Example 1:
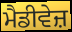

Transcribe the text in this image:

ਮੈਡੀਵੇਜ਼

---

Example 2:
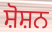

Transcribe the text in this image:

ਸ਼ੋਸ਼ਨ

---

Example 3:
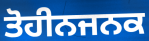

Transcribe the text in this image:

ਤੋਹੀਨਜਨਕ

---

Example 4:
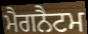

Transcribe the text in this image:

ਮੈਗਨੈਟਮ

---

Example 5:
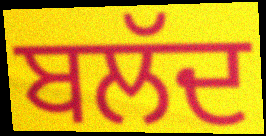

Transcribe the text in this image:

ਬਲੱਦ